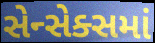
સેન્સેક્સમાં